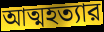
আত্মহত্যার